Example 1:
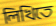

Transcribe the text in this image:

লিখিতে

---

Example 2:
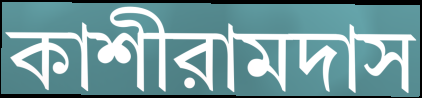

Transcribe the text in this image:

কাশীরামদাস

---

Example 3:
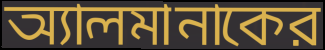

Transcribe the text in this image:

অ্যালমানাকের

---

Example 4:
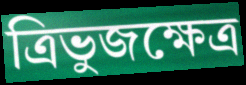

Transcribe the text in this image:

ত্রিভুজক্ষেত্র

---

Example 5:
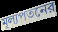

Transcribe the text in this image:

মূল্যপতনের